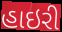
હાઇરી